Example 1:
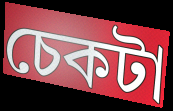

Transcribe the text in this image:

চেকটা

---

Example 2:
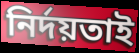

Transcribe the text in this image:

নির্দয়তাই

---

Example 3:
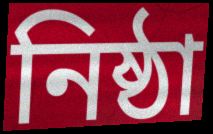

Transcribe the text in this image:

নিষ্ঠা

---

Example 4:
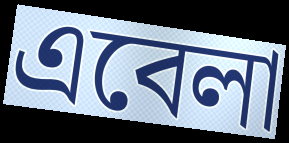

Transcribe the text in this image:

এবেলা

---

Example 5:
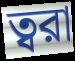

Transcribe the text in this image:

ত্বরা